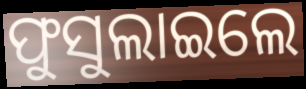
ଫୁସୁଲାଇଲେ